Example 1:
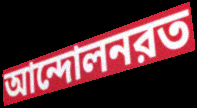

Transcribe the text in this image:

আন্দোলনরত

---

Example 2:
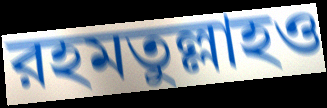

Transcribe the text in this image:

রহমতুল্লাহও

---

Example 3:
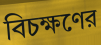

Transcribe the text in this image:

বিচক্ষণের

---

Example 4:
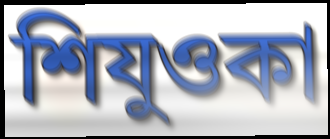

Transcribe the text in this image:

শিযুওকা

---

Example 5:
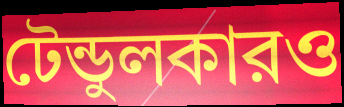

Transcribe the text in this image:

টেন্ডুলকারও